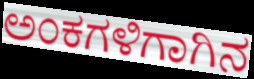
ಅಂಕಗಳಿಗಾಗಿನ